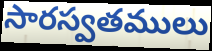
సారస్వతములు